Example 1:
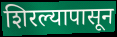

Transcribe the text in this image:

शिरल्यापासून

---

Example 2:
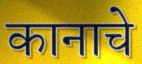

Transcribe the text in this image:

कानाचे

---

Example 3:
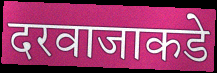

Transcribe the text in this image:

दरवाजाकडे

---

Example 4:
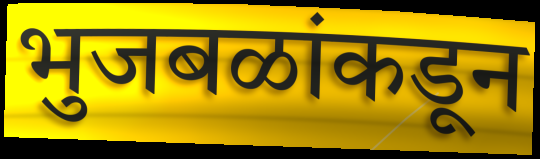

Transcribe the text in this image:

भुजबळांकडून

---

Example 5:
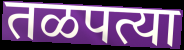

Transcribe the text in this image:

तळपत्या